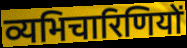
व्यभिचारिणियों